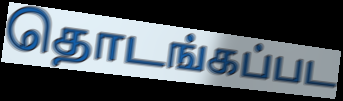
தொடங்கப்பட